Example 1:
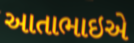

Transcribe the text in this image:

આતાભાઇએ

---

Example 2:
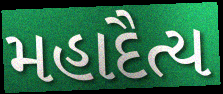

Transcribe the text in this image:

મહાદૈત્ય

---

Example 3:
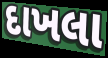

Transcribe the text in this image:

દાખલા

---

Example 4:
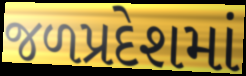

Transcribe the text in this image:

જળપ્રદેશમાં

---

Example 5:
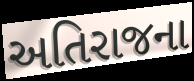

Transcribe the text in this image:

અતિરાજના